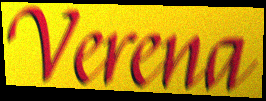
Verena